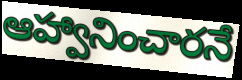
ఆహ్వానించారనే